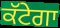
ਕੱਟੇਗਾ